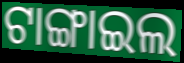
ଟାଙ୍ଗାଇଲ